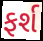
ફર્શ